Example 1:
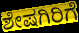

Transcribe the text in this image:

ಶೇಷಗಿರಿಗೆ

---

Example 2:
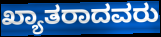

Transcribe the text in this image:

ಖ್ಯಾತರಾದವರು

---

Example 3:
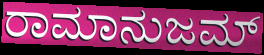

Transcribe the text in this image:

ರಾಮಾನುಜಮ್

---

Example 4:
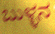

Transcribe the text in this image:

ಬುಳ್ಳನ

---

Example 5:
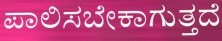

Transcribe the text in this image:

ಪಾಲಿಸಬೇಕಾಗುತ್ತದೆ